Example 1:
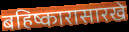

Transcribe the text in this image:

बहिष्कारासारखे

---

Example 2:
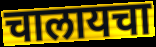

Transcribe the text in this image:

चालायचा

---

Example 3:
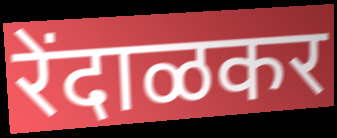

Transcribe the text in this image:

रेंदाळकर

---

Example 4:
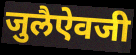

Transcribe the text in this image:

जुलैऐवजी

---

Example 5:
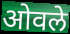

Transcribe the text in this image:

ओवले